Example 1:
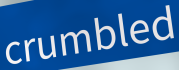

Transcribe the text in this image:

crumbled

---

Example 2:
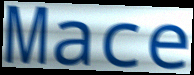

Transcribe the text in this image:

Mace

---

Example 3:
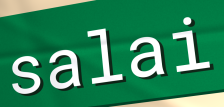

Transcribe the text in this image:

salai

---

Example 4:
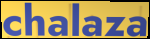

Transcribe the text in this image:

chalaza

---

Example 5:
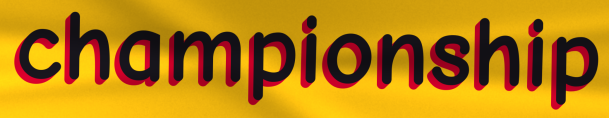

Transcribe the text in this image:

championship